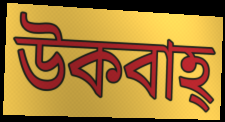
উকবাহ্